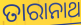
ତାରାନାଥ